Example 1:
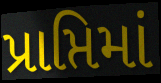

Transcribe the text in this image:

પ્રાપ્તિમાં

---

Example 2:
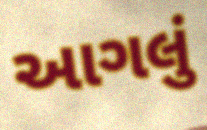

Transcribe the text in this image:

આગલું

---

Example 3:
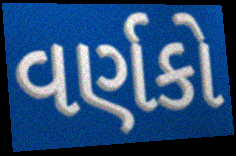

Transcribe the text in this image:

વર્ણકો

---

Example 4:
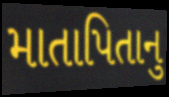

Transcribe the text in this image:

માતાપિતાનુ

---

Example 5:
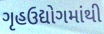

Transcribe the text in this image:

ગૃહઉદ્યોગમાંથી